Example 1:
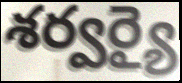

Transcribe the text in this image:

శర్వర్యై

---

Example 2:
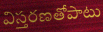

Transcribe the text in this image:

విస్తరణతోపాటు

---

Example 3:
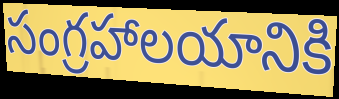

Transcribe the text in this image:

సంగ్రహాలయానికి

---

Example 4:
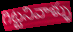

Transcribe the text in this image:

గిట్టనివాళ్ళు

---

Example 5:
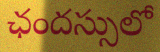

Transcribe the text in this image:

ఛందస్సులో